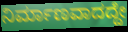
ನಿರ್ಮಾಣವಾದದ್ದೇ